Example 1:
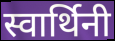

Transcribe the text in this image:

स्वार्थिनी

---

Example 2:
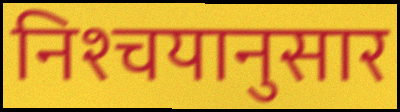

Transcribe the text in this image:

निश्चयानुसार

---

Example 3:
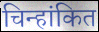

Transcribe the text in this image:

चिन्हांकित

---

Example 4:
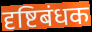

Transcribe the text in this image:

दृष्टिबंधक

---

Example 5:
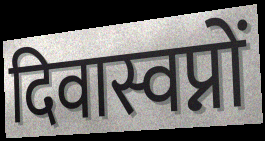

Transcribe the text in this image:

दिवास्वप्नों